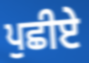
ਪੁਛੀਏ